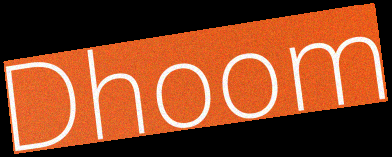
Dhoom